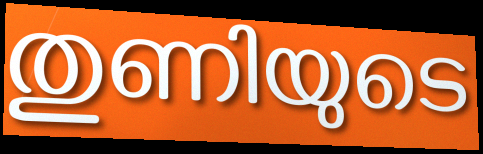
തുണിയുടെ